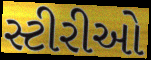
સ્ટીરીઓ